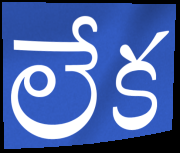
లేక